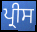
ਪ੍ਰੀਸ